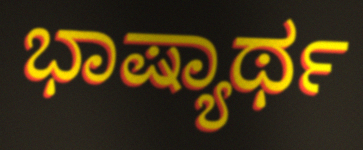
ಭಾಷ್ಯಾರ್ಥ